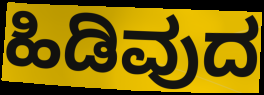
ಹಿಡಿವುದ